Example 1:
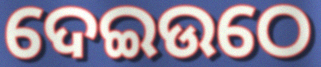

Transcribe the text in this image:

ଦେଇଉଠେ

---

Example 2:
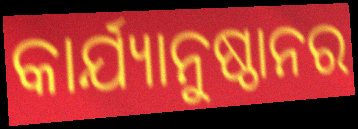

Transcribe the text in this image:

କାର୍ଯ୍ୟାନୁଷ୍ଠାନର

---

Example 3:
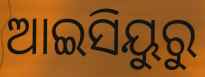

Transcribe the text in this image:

ଆଇସିୟୁରୁ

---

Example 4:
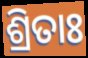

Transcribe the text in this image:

ଶ୍ରିତାଃ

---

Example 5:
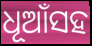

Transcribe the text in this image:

ଧୂଆଁସହ